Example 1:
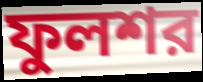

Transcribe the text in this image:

ফুলশর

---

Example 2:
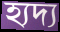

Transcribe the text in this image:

হ্যদ্য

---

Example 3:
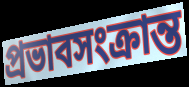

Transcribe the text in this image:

প্রভাবসংক্রান্ত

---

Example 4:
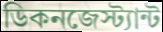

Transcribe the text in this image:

ডিকনজেস্ট্যান্ট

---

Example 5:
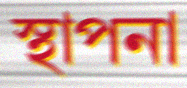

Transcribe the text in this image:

স্থাপনা